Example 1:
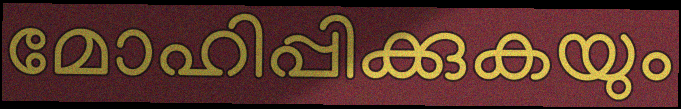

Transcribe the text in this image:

മോഹിപ്പിക്കുകയും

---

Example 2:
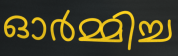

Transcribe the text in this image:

ഓർമ്മിച്ച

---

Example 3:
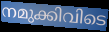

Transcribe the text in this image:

നമുക്കിവിടെ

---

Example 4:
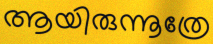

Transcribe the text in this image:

ആയിരുന്നൂത്രേ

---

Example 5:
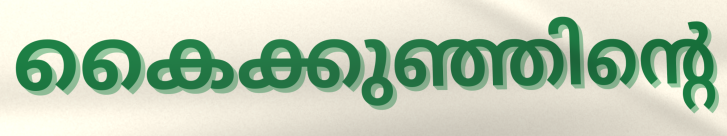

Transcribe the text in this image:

കൈക്കുഞ്ഞിന്റെ